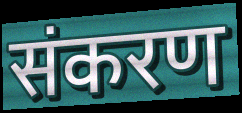
संकरण